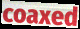
coaxed